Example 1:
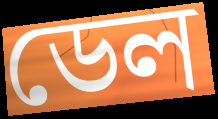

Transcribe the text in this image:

ডেল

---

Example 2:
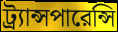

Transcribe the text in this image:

ট্র্যান্সপারেন্সি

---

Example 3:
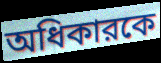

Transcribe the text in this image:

অধিকারকে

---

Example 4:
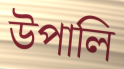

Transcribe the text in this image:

উপালি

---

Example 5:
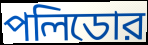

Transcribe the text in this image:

পলিডোর